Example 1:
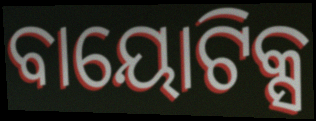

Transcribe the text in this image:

ବାୟୋଟିକ୍ସ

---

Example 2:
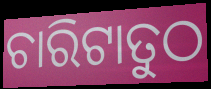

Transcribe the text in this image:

ଚାରିଟାତୁଠ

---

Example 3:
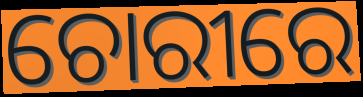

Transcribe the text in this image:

ଚୋରୀରେ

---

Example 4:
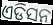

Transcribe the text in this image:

ଏଡିସନ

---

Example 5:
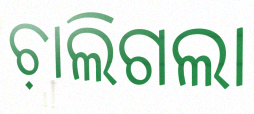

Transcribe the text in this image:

ଚ଼ାଲିଗଲା